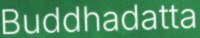
Buddhadatta